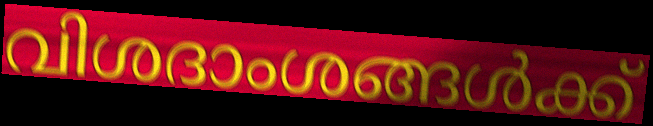
വിശദാംശങ്ങൾക്ക്